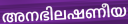
അനഭിലഷണീയ